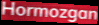
Hormozgan